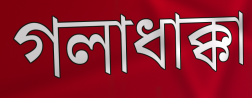
গলাধাক্কা